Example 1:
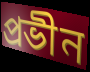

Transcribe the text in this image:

প্রভীন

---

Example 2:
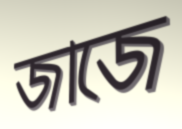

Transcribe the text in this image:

জাজে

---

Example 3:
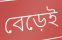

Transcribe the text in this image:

বেড়েই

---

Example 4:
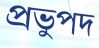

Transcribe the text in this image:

প্রভুপদ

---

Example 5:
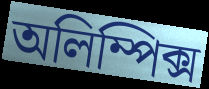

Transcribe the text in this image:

অলিম্পিক্স